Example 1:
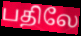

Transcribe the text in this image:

பதிலே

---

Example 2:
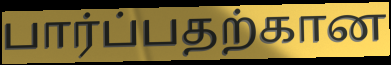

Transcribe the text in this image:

பார்ப்பதற்கான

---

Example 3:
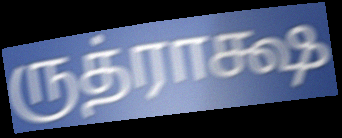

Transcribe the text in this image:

ருத்ராக்ஷ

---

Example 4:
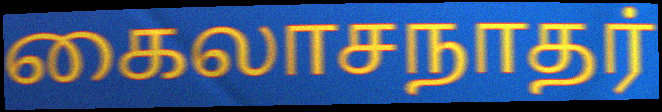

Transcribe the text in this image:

கைலாசநாதர்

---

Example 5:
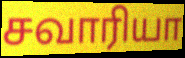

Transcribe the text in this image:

சவாரியா